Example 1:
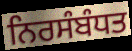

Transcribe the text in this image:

ਨਿਰਸੰਬੰਧਤ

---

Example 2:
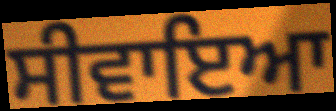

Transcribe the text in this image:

ਸੀਵਾਇਆ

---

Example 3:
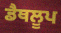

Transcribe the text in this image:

ਡੈਥਲੂਪ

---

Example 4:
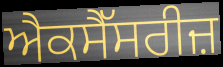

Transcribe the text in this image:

ਐਕਸੈੱਸਰੀਜ਼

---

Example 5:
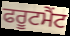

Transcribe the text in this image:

ਫਰੂਟਮੈਂਟ